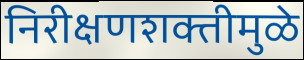
निरीक्षणशक्तीमुळे